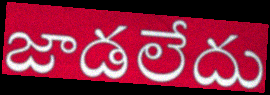
జాడలేదు